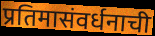
प्रतिमासंवर्धनाची